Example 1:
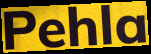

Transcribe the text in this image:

Pehla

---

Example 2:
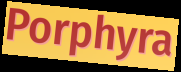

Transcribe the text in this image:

Porphyra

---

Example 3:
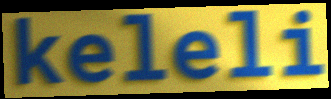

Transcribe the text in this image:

keleli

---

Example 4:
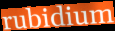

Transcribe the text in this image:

rubidium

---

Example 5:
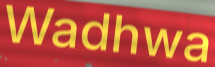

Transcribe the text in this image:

Wadhwa